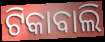
ଟିକାବାଲି